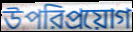
উপরিপ্রয়োগ